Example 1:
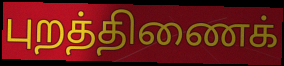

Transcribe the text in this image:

புறத்திணைக்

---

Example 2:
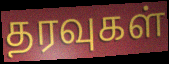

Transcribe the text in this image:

தரவுகள்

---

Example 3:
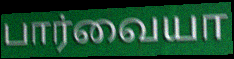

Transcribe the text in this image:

பார்வையா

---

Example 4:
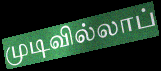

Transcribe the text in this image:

முடிவில்லாப்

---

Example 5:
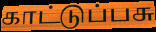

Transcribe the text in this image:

காட்டுப்பசு